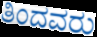
ತಿಂದವರು